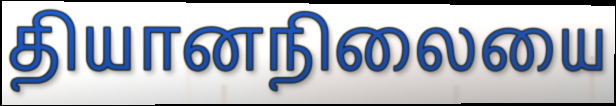
தியானநிலையை